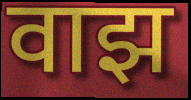
वाझ